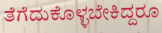
ತೆಗೆದುಕೊಳ್ಳಬೇಕಿದ್ದರೂ